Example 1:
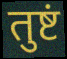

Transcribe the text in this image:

तुष्टं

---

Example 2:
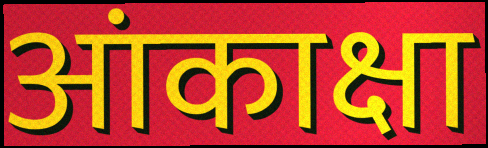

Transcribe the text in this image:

आंकाक्षा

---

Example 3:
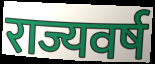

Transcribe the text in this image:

राज्यवर्ष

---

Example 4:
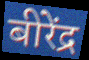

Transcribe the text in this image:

बीरेंद्र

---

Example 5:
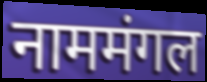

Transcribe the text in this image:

नाममंगल